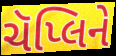
ચૅપ્લિને